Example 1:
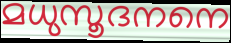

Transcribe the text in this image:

മധുസൂദനനെ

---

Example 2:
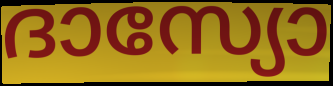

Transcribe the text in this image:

ദാസ്യോ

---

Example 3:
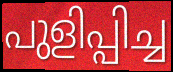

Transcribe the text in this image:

പുളിപ്പിച്ച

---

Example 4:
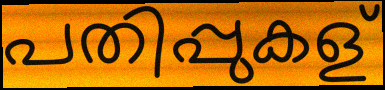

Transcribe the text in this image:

പതിപ്പുകള്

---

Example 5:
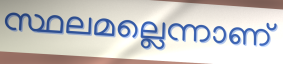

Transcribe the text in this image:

സ്ഥലമല്ലെന്നാണ്